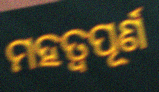
ମହତ୍ୱପୂର୍ଣ